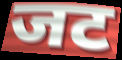
जट